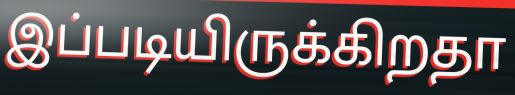
இப்படியிருக்கிறதா